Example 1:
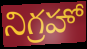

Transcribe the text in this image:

నిగ్రహో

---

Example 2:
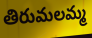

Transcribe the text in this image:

తిరుమలమ్మ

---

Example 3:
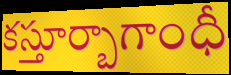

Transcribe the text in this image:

కస్తూర్బాగాంధీ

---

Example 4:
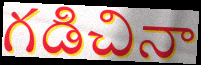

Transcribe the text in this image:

గడిచినా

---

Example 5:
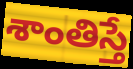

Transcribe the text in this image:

శాంతిస్తే